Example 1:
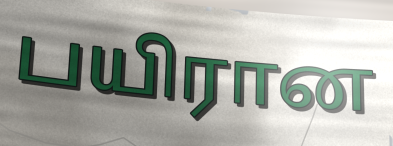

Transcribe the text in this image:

பயிரான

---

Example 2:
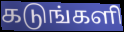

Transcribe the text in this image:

கடுங்களி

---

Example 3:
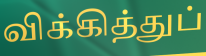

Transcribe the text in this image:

விக்கித்துப்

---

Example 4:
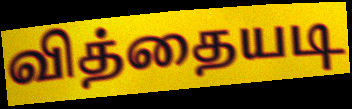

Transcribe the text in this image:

வித்தையடி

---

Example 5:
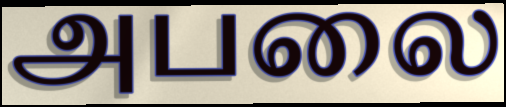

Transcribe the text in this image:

அபலை